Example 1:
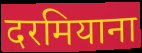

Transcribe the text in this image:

दरमियाना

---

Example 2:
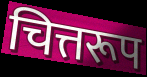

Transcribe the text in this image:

चित्तरूप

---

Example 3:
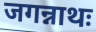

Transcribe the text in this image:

जगन्नाथः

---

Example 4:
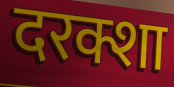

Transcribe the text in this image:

दरक्शा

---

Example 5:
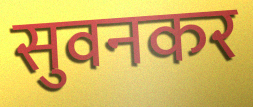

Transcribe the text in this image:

सुवनकर